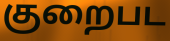
குறைபட